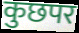
कुछपर